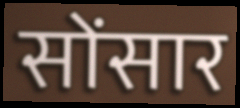
सोंसार